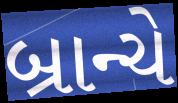
બ્રાન્ચે